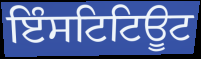
ਇੰਸਟਿਟਿਊਟ